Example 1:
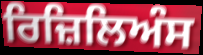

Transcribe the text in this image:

ਰਿਜ਼ਿਲਿਅੰਸ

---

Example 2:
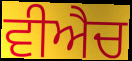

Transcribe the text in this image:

ਵੀਐਚ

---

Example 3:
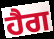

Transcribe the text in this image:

ਹੈਗ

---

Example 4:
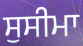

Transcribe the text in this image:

ਸੁਸੀਮਾ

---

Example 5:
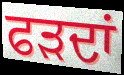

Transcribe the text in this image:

ਫੜਦਾਂ